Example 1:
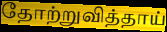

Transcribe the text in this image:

தோற்றுவித்தாய்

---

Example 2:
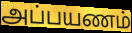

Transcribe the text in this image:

அப்பயணம்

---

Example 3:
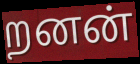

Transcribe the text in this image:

றனன்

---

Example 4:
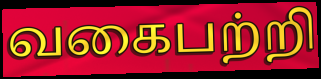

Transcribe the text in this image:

வகைபற்றி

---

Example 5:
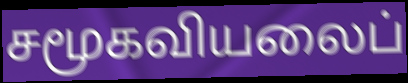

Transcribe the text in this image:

சமூகவியலைப்